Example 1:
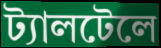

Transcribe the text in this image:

ট্যালটেলে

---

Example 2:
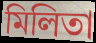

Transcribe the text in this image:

মিলিতা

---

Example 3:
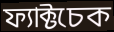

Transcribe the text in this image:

ফ্যাক্টচেক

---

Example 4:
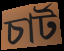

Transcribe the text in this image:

চার্ট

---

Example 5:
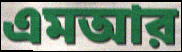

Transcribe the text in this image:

এমআর